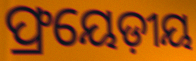
ଫ୍ରୟେଡ଼ୀୟ